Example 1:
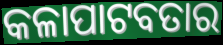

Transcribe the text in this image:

କଳାପାଟବତାର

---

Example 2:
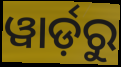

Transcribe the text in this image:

ୱାର୍ଡ଼ରୁ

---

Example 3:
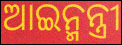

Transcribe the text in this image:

ଆଇନ୍ମନ୍ତ୍ରୀ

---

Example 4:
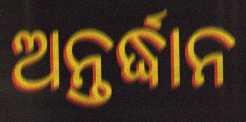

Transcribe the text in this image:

ଅନ୍ତର୍ଦ୍ଧାନ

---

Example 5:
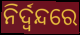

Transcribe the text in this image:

ନିର୍ଦ୍ୱନ୍ଦରେ